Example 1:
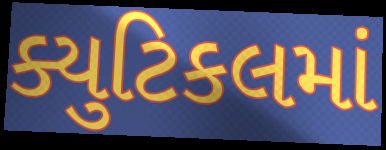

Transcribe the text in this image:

ક્યુટિકલમાં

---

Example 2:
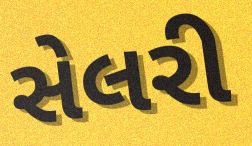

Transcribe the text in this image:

સેલરી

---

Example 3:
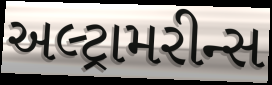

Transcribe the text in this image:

અલ્ટ્રામરીન્સ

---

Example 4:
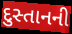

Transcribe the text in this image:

દુસ્તાનની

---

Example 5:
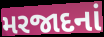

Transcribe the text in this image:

મરજાદનાં